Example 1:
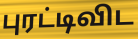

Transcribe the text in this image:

புரட்டிவிட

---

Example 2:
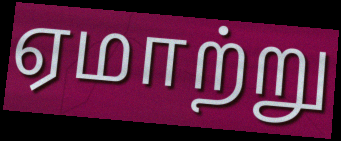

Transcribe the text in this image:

ஏமாற்று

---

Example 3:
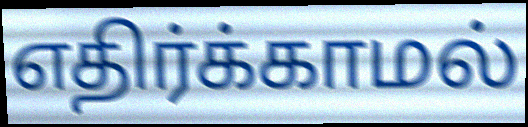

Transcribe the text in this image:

எதிர்க்காமல்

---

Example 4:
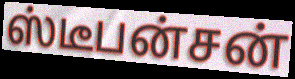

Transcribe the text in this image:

ஸ்டீபன்சன்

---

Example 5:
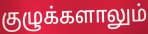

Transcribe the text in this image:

குழுக்களாலும்